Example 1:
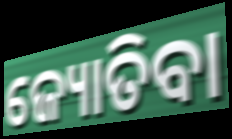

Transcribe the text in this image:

ଜ୍ୟୋତିବା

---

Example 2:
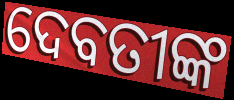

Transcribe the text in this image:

ଦେବତୀଙ୍କ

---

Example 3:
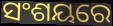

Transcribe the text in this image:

ସଂଶୟରେ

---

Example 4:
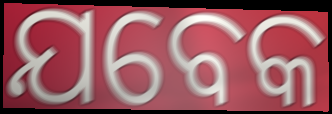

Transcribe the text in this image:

ଯବେକ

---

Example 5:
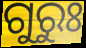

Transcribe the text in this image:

ଗୁରୁଃ